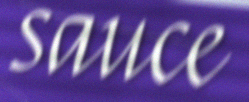
sauce